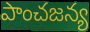
పాంచజన్య